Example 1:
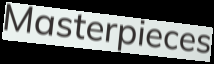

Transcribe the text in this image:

Masterpieces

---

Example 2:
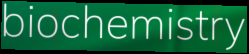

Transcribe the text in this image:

biochemistry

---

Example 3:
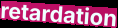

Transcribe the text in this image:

retardation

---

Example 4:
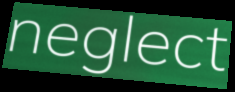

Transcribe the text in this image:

neglect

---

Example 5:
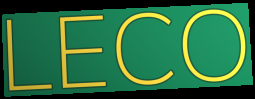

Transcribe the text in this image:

LECO